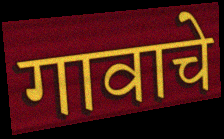
गावाचे